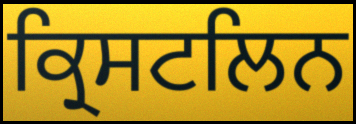
ਕ੍ਰਿਸਟਲਿਨ